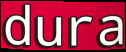
dura